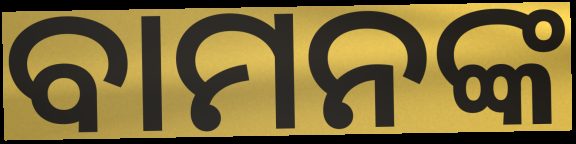
ବାମନଙ୍କ